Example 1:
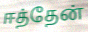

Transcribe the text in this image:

ஈத்தேன்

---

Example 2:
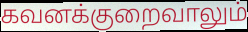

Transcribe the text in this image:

கவனக்குறைவாலும்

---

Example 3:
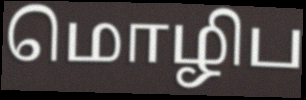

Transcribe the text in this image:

மொழிப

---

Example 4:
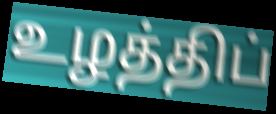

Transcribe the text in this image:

உழத்திப்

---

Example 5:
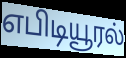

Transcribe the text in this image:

எபிடியூரல்